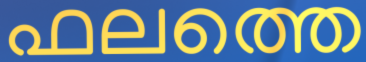
ഫലത്തെ